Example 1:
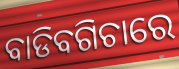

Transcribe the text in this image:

ବାଡିବଗିଚାରେ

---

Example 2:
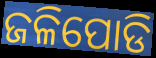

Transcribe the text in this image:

ଜଳିପୋଡି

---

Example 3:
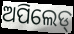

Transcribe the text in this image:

ଅପିଲେଡ୍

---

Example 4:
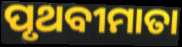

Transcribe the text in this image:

ପୃଥବୀମାତା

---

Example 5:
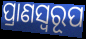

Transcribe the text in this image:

ପ୍ରାଣସ୍ୱରୂପ